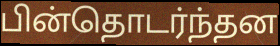
பின்தொடர்ந்தன